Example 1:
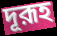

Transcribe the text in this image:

দূরূহ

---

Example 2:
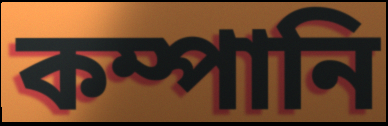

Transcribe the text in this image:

কম্পানি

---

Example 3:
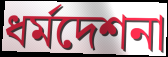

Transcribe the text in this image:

ধর্মদেশনা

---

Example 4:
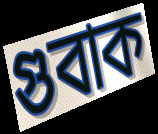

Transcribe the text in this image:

গুবাক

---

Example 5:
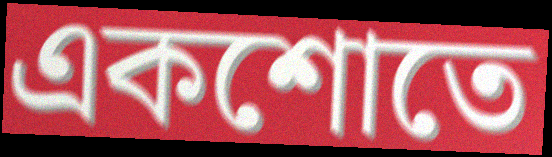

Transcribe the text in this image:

একশোতে